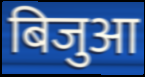
बिजुआ